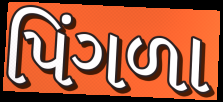
પિંગળા